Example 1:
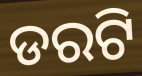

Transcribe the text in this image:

ଡରଟି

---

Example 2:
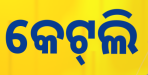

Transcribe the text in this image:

କେଟ୍‌ଲି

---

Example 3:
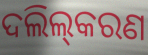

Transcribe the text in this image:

ଦଲିଲ୍‌କରଣ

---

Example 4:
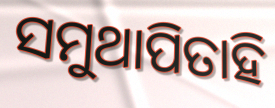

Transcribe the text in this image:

ସମୁଥାପିତାହି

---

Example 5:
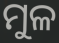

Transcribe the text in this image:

ମୁଳ